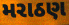
મરાઠણ